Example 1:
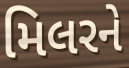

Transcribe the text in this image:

મિલરને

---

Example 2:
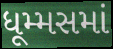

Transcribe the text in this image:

ધૂમ્મસમાં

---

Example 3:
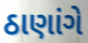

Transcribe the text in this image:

ઠાણાંગે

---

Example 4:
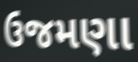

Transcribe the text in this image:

ઉજમણા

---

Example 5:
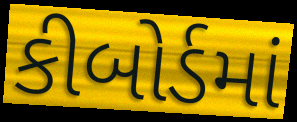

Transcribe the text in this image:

કીબોર્ડમાં